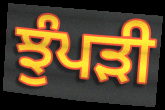
ਝੁੰਪੜੀ